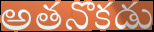
అతనొకడు